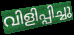
വിളിപ്പിച്ചു